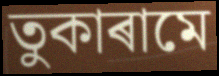
তুকাৰামে